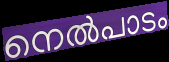
നെൽപാടം